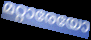
മറ്റാരേയോ